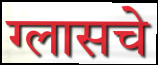
ग्लासचे